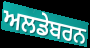
ਅਲਡੇਬਰਨ